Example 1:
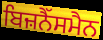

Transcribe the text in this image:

ਬਿਜ਼ਨੈੱਸਮੈਨ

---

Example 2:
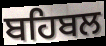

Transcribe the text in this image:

ਬਹਿਬਲ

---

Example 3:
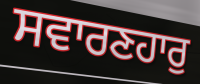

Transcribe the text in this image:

ਸਵਾਰਣਹਾਰੁ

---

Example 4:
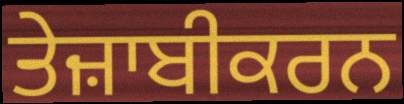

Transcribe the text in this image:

ਤੇਜ਼ਾਬੀਕਰਨ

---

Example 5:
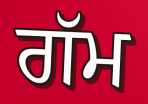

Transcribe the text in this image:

ਗੱਮ